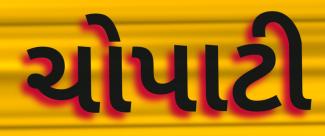
ચોપાટી